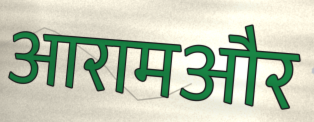
आरामऔर